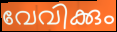
വേവിക്കും